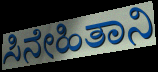
ಸಿನೇಹಿತಾನಿ